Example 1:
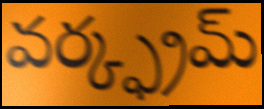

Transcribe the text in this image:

వర్క్ఫ్రమ్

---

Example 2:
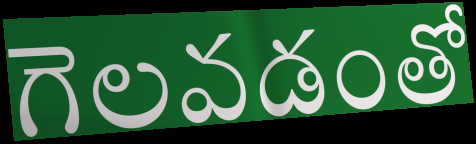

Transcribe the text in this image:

గెలవడంతో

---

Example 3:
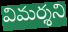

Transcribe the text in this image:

విమర్శని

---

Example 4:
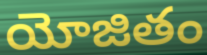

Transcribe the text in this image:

యోజితం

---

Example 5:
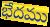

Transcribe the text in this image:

భేదము